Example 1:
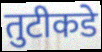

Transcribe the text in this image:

तुटीकडे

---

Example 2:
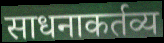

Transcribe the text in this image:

साधनाकर्तव्य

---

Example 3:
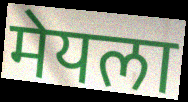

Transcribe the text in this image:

मेयला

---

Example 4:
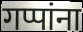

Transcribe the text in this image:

गप्पांना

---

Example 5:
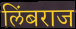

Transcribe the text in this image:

लिंबराज